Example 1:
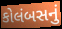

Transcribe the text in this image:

કોલંબસનું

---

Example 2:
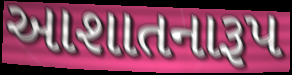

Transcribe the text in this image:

આશાતનારૂપ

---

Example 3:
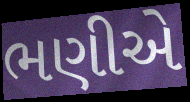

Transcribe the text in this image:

ભણીએ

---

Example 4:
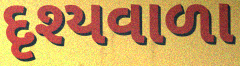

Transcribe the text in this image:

દૃશ્યવાળા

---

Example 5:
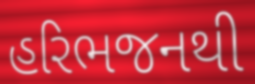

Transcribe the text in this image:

હરિભજનથી